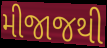
મીજાજથી